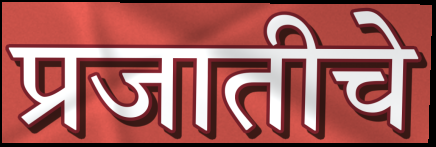
प्रजातीचे